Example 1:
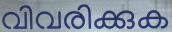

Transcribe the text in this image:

വിവരിക്കുക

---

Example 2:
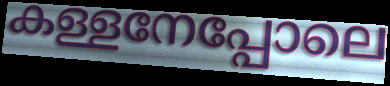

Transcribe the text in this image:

കള്ളനേപ്പോലെ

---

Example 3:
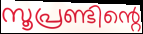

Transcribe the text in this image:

സൂപ്രണ്ടിന്റെ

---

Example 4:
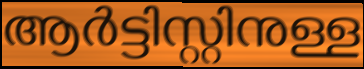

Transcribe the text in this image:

ആർട്ടിസ്റ്റിനുള്ള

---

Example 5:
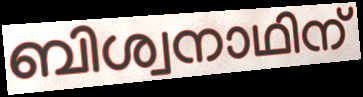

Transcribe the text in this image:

ബിശ്വനാഥിന്